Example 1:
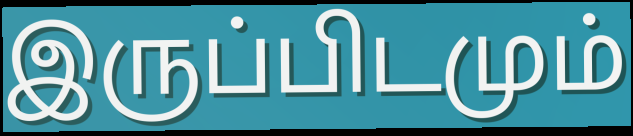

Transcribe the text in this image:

இருப்பிடமும்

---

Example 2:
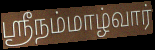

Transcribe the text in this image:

ஸ்ரீநம்மாழ்வார்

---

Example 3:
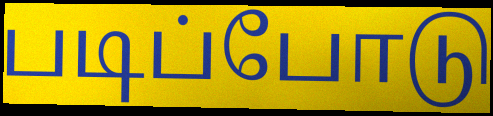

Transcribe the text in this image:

படிப்போடு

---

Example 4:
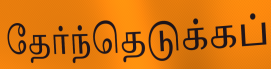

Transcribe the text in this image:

தேர்ந்தெடுக்கப்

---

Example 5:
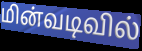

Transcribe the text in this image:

மின்வடிவில்